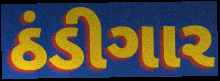
ઠંડીગાર